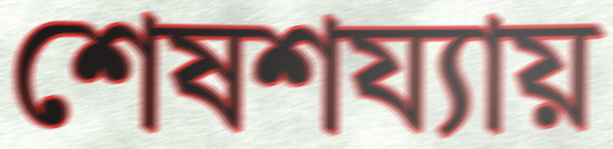
শেষশয্যায়